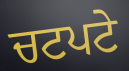
ਚਟਪਟੇ